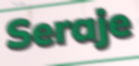
Seraje